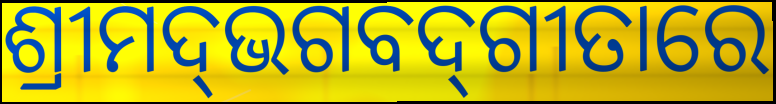
ଶ୍ରୀମଦ୍‌ଭଗବଦ୍‌ଗୀତାରେ